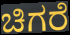
ಚಿಗರೆ